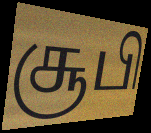
சூபி